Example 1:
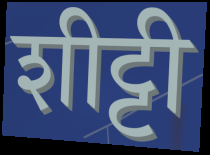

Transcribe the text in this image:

शीट्टी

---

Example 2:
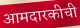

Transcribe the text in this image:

आमदारकीची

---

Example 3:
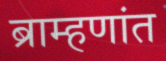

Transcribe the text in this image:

ब्राम्हणांत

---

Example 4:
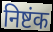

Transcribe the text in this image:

निष्टंक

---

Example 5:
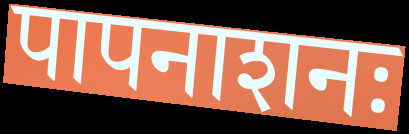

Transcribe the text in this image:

पापनाशनः